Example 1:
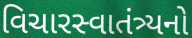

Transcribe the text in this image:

વિચારસ્વાતંત્ર્યનો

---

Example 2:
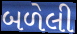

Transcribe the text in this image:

બળેલી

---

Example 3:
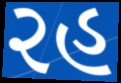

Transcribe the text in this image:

રહ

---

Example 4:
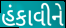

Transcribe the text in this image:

હંકાવીને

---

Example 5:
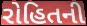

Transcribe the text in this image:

રોહિતની